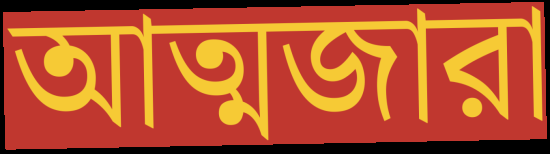
আত্মজারা